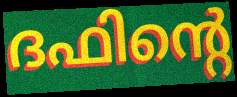
ദഫിന്റെ